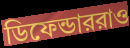
ডিফেন্ডাররাও